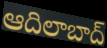
ఆదిలాబాద్